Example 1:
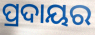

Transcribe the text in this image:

ପ୍ରଦାୟର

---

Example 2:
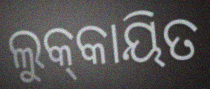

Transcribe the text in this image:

ଲୁକ୍‌କାୟିତ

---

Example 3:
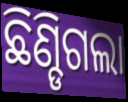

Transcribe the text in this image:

ଛିଣ୍ଡିଗଲା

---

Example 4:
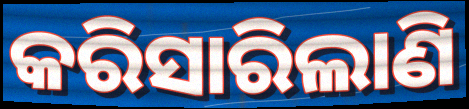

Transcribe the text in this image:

କରିସାରିଲାଣି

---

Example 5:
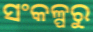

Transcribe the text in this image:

ସଂକଳ୍ପରୁ